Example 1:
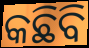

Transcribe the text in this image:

କଛିବି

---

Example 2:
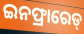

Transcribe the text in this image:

ଇନଫ୍ରାରେଡ୍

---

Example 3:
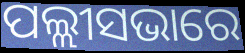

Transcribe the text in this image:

ପଲ୍ଲୀସଭାରେ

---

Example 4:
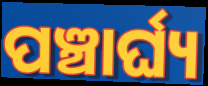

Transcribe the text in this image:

ପଞ୍ଚାର୍ଘ୍ୟ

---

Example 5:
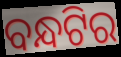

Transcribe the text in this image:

ବନ୍ଧଟିର